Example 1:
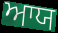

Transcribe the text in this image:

ਆਯ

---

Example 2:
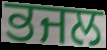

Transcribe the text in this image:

ਭਜਲ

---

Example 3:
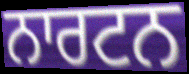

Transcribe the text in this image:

ਨਾਰਟਨ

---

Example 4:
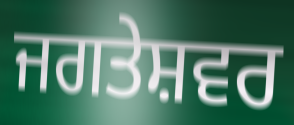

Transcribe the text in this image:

ਜਗਤੇਸ਼ਵਰ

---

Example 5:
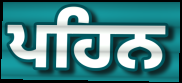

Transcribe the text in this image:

ਪਹਿਨ